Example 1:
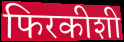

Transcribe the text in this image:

फिरकीशी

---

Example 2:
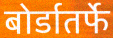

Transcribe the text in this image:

बोर्डातर्फे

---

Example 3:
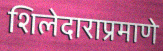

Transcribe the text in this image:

शिलेदाराप्रमाणे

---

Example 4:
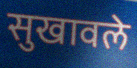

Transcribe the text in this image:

सुखावले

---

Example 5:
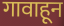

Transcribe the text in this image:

गावाहून